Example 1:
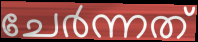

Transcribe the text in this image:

ചേർന്നത്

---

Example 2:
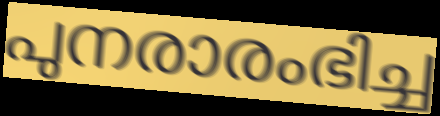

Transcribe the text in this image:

പുനരാരംഭിച്ച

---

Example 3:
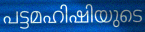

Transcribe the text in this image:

പട്ടമഹിഷിയുടെ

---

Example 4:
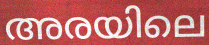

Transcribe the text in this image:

അരയിലെ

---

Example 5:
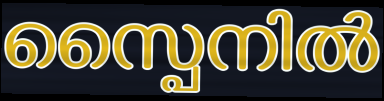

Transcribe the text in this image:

സ്പൈനിൽ